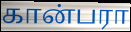
கான்பரா